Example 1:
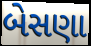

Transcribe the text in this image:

બેસણા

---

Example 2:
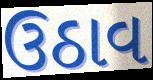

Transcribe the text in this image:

ઉઠાવ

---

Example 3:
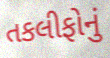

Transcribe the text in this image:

તકલીફોનું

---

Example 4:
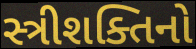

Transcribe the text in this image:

સ્ત્રીશક્તિનો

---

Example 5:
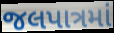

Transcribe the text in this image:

જલપાત્રમાં